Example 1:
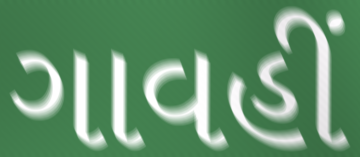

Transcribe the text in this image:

ગાવહીં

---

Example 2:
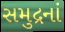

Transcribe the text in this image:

સમુદ્રનાં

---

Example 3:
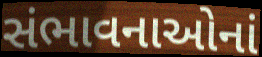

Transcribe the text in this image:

સંભાવનાઓનાં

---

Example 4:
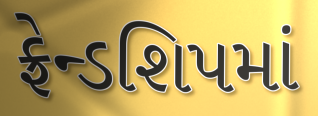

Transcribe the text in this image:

ફ્રેન્ડશિપમાં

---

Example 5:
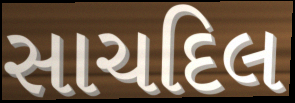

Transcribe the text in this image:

સાચદિલ